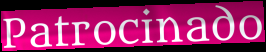
Patrocinado